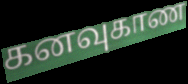
கனவுகாண